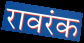
रावरंक